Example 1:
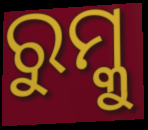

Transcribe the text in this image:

ରୁମ୍କୁ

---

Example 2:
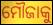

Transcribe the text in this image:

ମୌଜାକୁ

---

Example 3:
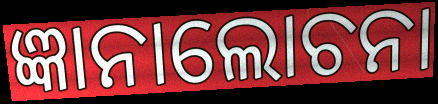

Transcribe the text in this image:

ଜ୍ଞାନାଲୋଚନା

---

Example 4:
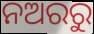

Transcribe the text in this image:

ନଅରରୁ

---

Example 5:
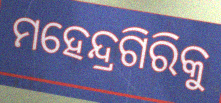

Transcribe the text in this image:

ମହେନ୍ଦ୍ରଗିରିକୁ